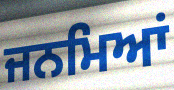
ਜਨਮਿਆਂ